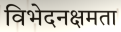
विभेदनक्षमता